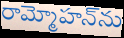
రామ్మోహన్‌ను